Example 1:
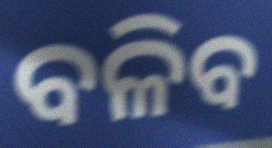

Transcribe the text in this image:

ବଳିବ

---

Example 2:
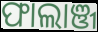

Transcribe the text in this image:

ଫାଲାଞ୍ଜ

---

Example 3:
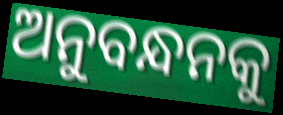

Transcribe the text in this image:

ଅନୁବନ୍ଧନକୁ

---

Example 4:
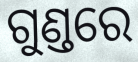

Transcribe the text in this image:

ଗୁଣ୍ଡରେ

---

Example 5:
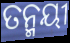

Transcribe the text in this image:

ତନ୍ମୟୀ